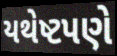
યથેષ્ટપણે